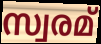
സ്വരമ്